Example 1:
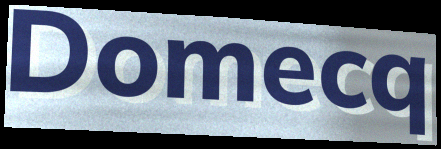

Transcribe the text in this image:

Domecq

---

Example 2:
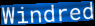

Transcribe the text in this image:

Windred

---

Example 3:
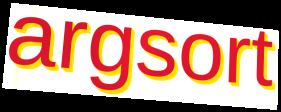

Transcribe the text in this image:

argsort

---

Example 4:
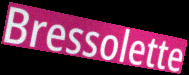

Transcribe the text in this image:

Bressolette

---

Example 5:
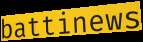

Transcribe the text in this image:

battinews